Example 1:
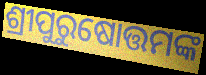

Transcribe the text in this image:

ଶ୍ରୀପୁରୁଷୋତ୍ତମଙ୍କ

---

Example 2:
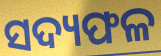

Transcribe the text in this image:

ସଦ୍ୟଫଳ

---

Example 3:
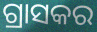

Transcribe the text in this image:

ଗ୍ରାସକର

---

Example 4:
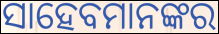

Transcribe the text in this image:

ସାହେବମାନଙ୍କର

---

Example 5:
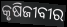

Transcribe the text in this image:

କୃଷିଜୀବୀର